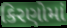
કિરણોમાં